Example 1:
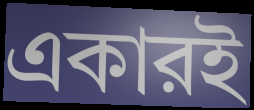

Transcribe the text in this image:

একারই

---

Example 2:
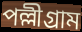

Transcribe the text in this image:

পল্লীগ্রাম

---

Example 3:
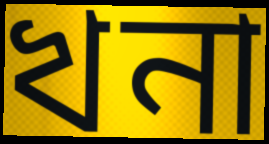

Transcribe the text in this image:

খনা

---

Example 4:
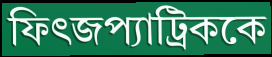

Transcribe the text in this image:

ফিৎজপ্যাট্রিককে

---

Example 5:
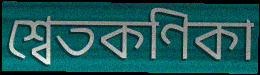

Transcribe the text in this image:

শ্বেতকণিকা